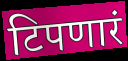
टिपणारं